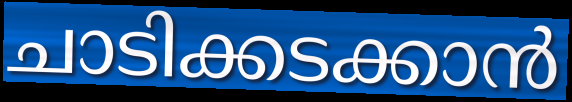
ചാടിക്കടക്കാൻ